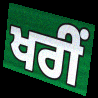
ਖਰੀਂ